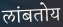
लांबतोय